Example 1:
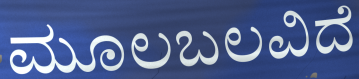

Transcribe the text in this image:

ಮೂಲಬಲವಿದೆ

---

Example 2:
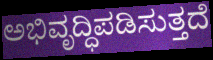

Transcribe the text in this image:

ಅಭಿವೃದ್ಧಿಪಡಿಸುತ್ತದೆ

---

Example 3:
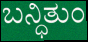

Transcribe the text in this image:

ಬನ್ಧಿತುಂ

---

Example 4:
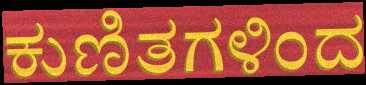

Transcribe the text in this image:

ಕುಣಿತಗಳಿಂದ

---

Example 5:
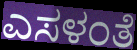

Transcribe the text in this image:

ಎಸಳಂತೆ